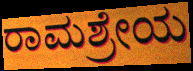
ರಾಮಶ್ರೇಯ